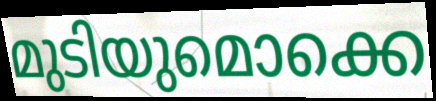
മുടിയുമൊക്കെ